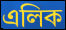
এলিক